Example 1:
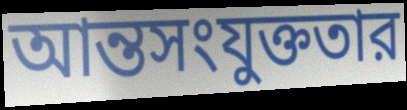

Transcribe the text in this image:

আন্তসংযুক্ততার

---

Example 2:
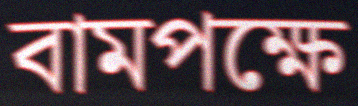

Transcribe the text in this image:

বামপক্ষে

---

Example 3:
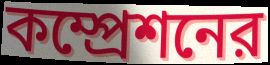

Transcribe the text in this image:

কম্প্রেশনের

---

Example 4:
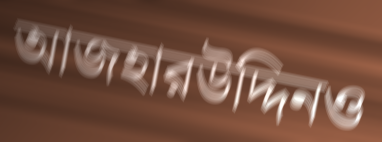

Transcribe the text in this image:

আজহারউদ্দিনও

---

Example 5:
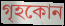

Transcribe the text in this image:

গৃহকোন